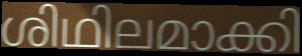
ശിഥിലമാക്കി